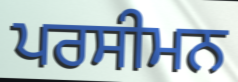
ਪਰਸੀਮਨ